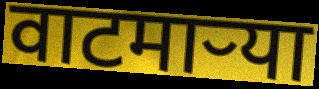
वाटमाऱ्या